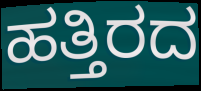
ಹತ್ತಿರದ